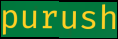
purush